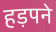
हड़पने